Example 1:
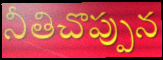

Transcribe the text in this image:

నీతిచొప్పున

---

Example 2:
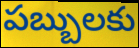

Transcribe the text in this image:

పబ్బులకు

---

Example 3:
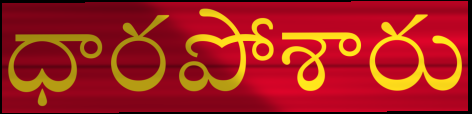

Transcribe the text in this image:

ధారపోశారు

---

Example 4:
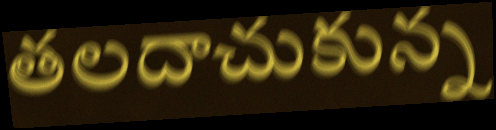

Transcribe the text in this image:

తలదాచుకున్న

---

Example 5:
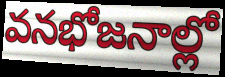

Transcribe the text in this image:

వనభోజనాల్లో